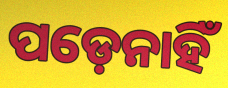
ପଡ଼େନାହିଁ